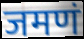
जमणं